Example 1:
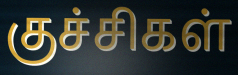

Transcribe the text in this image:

குச்சிகள்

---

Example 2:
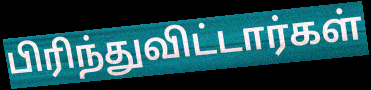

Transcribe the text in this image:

பிரிந்துவிட்டார்கள்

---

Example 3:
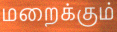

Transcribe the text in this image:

மறைக்கும்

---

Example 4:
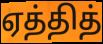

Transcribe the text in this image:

ஏத்தித்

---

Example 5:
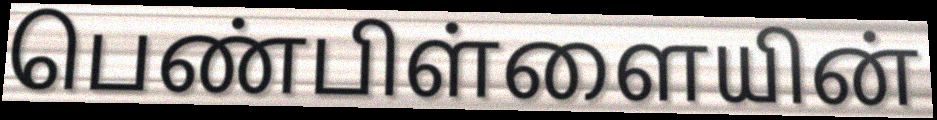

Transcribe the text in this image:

பெண்பிள்ளையின்